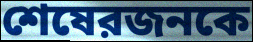
শেষেরজনকে